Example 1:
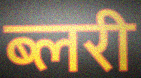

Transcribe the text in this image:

ब्लरी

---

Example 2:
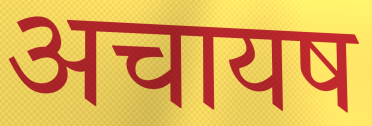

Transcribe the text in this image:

अचायष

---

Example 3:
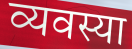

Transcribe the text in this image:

व्यवस्या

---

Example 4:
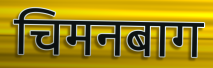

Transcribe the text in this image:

चिमनबाग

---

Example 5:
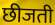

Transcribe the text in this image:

छीजती